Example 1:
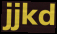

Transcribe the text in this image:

jjkd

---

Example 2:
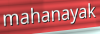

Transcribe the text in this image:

mahanayak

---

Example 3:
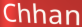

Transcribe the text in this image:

Chhan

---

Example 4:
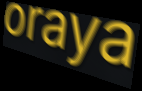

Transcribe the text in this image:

oraya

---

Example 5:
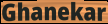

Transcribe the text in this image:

Ghanekar